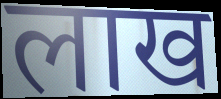
लाख